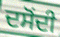
ਦਸੋਂਦੀ